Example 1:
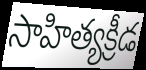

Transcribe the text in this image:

సాహిత్యక్రీడ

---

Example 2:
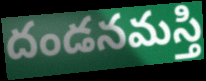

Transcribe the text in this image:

దండనమస్తి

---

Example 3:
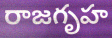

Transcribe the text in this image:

రాజగృహ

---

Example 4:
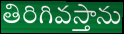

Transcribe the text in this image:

తిరిగివస్తాను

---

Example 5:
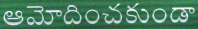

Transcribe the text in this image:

ఆమోదించకుండా